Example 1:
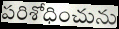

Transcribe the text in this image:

పరిశోధించును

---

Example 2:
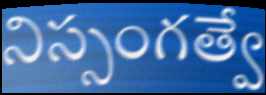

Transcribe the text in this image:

నిస్సంగత్వే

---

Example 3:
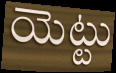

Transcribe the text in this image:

యెట్టు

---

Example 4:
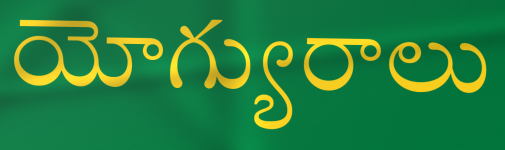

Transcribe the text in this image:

యోగ్యురాలు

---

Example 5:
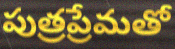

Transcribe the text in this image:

పుత్రప్రేమతో